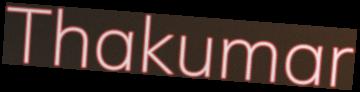
Thakumar